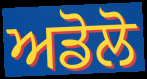
ਅਡੋਲੋ